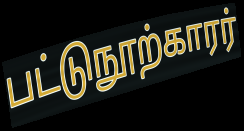
பட்டுநூற்காரர்